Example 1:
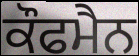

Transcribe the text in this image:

ਕੌਫਮੈਨ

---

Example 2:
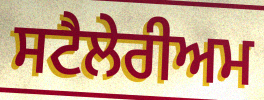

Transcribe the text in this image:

ਸਟੈਲੇਰੀਅਮ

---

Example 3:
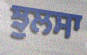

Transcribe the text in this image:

ਝੁਲਸਾ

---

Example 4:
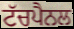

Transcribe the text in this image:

ਟੱਚਪੈਨਲ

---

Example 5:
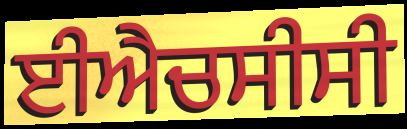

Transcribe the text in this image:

ਈਐਚਸੀਸੀ